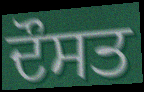
ਦੌਸਤ